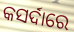
କସର୍ଦାରେ